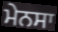
ਮੇਨਸਾ